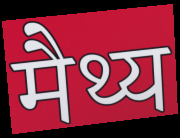
मैथ्य